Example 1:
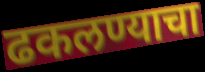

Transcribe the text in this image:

ढकलण्याचा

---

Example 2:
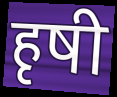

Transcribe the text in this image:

हृषी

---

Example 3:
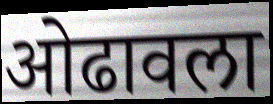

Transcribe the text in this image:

ओढावला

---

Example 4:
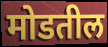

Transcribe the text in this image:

मोडतील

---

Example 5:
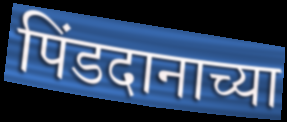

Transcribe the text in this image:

पिंडदानाच्या